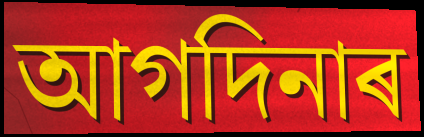
আগদিনাৰ